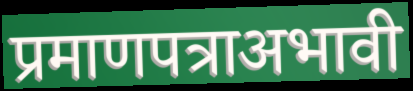
प्रमाणपत्राअभावी